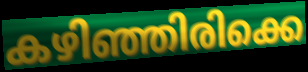
കഴിഞ്ഞിരിക്കെ